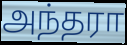
அந்தரா